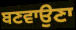
ਬਣਵਾਉਣਾ